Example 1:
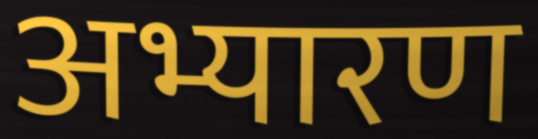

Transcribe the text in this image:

अभ्यारण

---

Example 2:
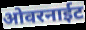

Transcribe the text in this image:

ओवरनाईट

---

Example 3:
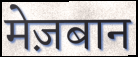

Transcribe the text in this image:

मेज़बान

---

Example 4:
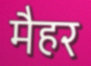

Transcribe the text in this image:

मैहर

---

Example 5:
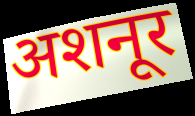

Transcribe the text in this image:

अशनूर